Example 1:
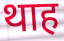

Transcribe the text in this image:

थाह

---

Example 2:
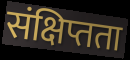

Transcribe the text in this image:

संक्षिप्तता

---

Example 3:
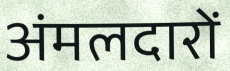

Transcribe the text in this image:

अंमलदारों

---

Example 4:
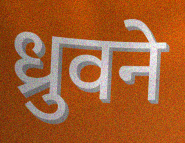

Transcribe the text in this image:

ध्रुवने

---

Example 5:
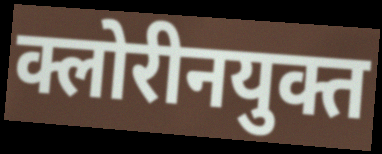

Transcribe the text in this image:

क्लोरीनयुक्त